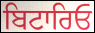
ਬਿਟਾਰਿਓ